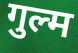
गुल्म